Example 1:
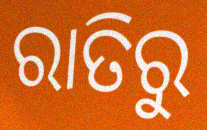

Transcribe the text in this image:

ରାତିରୁ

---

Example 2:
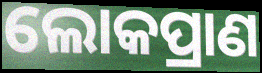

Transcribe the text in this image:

ଲୋକପ୍ରାଣ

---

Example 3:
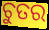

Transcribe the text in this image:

ଚୁତର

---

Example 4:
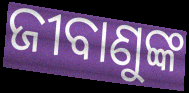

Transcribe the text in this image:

ଜୀବାଣୁଙ୍କ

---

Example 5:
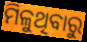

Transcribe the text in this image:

ମିଳୁଥିବାରୁ